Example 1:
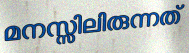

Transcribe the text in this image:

മനസ്സിലിരുന്നത്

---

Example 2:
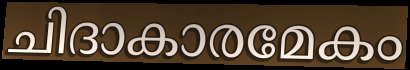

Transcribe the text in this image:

ചിദാകാരമേകം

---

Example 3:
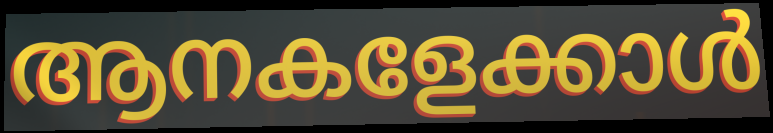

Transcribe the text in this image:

ആനകളേക്കാൾ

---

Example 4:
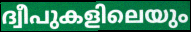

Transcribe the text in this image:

ദ്വീപുകളിലെയും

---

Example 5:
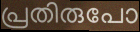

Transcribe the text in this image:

പ്രതിരുപോ